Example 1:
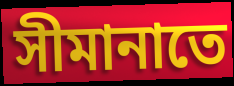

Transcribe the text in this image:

সীমানাতে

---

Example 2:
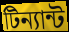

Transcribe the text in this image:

টিন্যান্ট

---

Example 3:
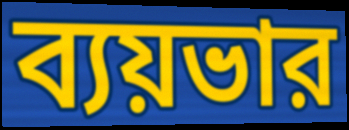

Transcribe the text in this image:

ব্যয়ভার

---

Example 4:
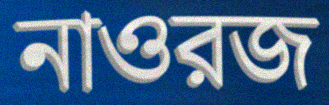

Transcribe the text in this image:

নাওরজ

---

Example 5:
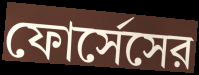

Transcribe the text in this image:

ফোর্সেসের